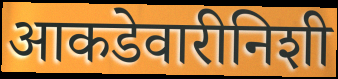
आकडेवारीनिशी